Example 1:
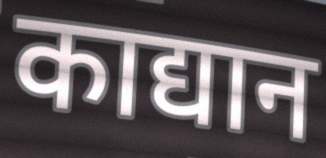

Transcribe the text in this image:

काद्यान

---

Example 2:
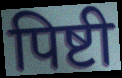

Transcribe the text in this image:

पिष्टी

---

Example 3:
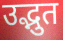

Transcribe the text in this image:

उद्भुत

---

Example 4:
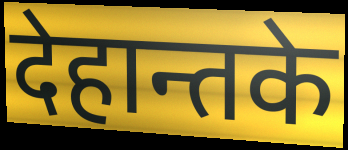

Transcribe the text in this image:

देहान्तके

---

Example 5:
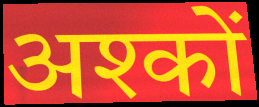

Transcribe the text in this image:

अश्कों